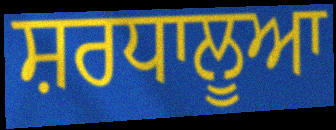
ਸ਼ਰਧਾਲੂਆ